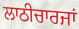
ਲਾਠੀਚਾਰਜਾਂ